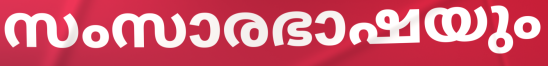
സംസാരഭാഷയും